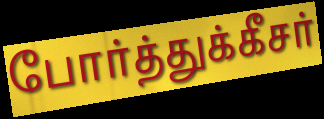
போர்த்துக்கீசர்